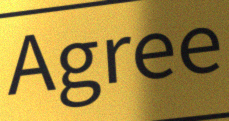
Agree